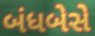
બંધબેસે